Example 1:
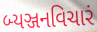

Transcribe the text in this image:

બ્યઞ્જનવિચારં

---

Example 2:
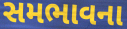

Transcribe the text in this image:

સમભાવના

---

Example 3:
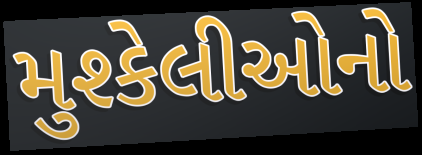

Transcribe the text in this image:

મુશ્કેલીઓનો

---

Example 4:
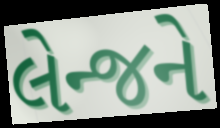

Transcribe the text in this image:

લેન્જને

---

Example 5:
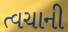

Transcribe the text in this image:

ત્વચાની